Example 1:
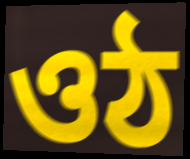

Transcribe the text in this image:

ওঠ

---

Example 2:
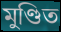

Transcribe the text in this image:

মুণ্ডিত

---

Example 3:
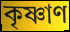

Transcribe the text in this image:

কৃষ্ণাণ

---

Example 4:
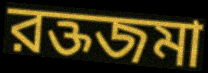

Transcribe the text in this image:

রক্তজমা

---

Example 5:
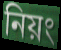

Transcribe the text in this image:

নিয়ং